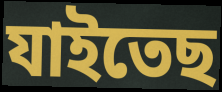
যাইতেছ